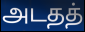
அடதத்